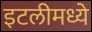
इटलीमध्ये